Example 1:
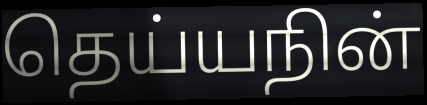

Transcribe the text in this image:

தெய்யநின்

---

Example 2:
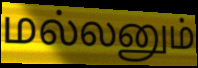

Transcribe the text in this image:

மல்லனும்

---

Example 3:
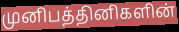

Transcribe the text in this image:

முனிபத்தினிகளின்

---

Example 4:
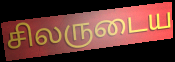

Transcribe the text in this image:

சிலருடைய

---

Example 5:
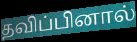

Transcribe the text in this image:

தவிப்பினால்